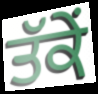
ਤੱਕੇਂ